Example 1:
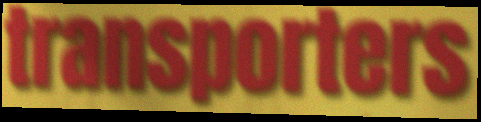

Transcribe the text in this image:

transporters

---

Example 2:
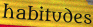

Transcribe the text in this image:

habitudes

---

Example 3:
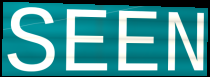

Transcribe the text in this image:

SEEN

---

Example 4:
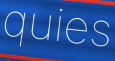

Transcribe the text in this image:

quies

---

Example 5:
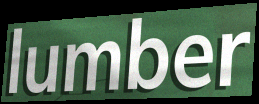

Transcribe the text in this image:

lumber